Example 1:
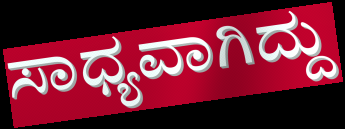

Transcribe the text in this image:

ಸಾಧ್ಯವಾಗಿದ್ದು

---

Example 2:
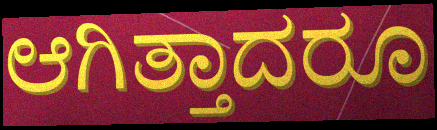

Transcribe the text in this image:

ಆಗಿತ್ತಾದರೂ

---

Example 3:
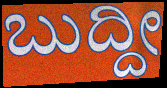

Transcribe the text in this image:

ಬುದ್ದೀ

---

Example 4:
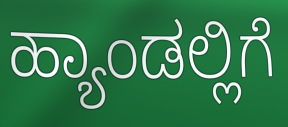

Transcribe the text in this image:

ಹ್ಯಾಂಡಲ್ಲಿಗೆ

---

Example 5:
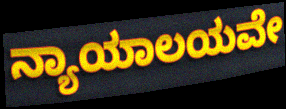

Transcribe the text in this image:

ನ್ಯಾಯಾಲಯವೇ